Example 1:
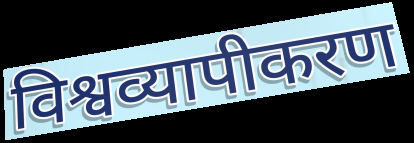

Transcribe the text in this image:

विश्वव्यापीकरण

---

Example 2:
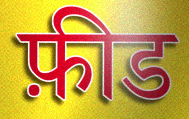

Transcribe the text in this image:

फ़ीड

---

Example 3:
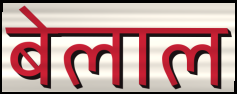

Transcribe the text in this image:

बेलाल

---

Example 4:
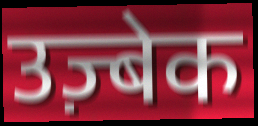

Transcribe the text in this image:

उज़्बेक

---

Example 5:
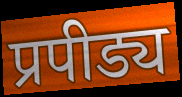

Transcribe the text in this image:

प्रपीड्य